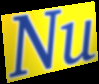
Nu